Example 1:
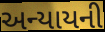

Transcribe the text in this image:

અન્યાયની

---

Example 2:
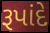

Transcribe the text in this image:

રૂપાંદે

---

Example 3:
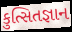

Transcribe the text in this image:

કુત્સિતજ્ઞાન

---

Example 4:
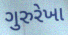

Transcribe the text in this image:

ગુરુરેખા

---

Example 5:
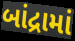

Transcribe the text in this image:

બાંદ્રામાં